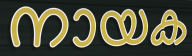
നായക